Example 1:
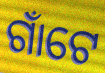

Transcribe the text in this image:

ଗାଁଟେ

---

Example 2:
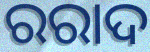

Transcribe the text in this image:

ରରାଦ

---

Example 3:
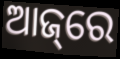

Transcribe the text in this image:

ଆଜ୍‌ରେ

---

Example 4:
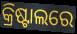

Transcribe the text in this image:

କ୍ରିଷ୍ଟାଲରେ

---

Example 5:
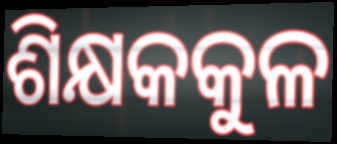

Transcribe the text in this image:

ଶିକ୍ଷକକୁଳ